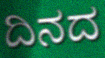
ದಿನದ